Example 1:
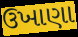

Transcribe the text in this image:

ઉખાણા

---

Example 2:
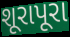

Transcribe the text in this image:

શૂરાપૂરા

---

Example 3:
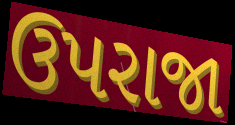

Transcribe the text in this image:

ઉપરાજા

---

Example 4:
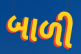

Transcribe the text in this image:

બાળી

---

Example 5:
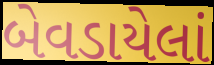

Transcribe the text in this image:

બેવડાયેલાં